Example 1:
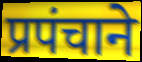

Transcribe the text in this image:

प्रपंचाने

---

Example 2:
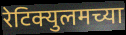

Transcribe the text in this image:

रेटिक्युलमच्या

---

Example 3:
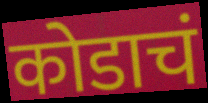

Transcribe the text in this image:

कोडाचं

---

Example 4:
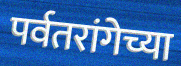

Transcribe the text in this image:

पर्वतरांगेच्या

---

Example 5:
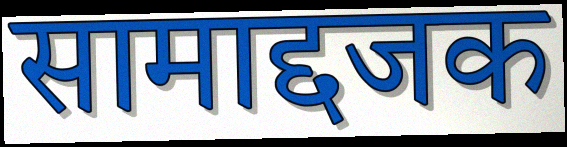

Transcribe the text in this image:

सामाद्दजक